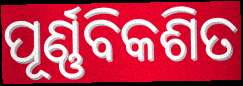
ପୂର୍ଣ୍ଣବିକଶିତ